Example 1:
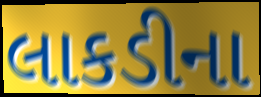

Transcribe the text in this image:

લાકડીના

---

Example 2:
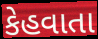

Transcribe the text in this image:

કેહવાતા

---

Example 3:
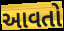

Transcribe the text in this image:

આવતો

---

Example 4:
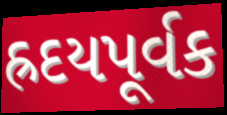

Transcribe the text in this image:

હ્રદયપૂર્વક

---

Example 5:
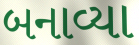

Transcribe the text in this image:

બનાવ્યા